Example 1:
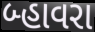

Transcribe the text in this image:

બ્હાવરા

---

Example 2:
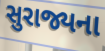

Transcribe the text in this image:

સુરાજ્યના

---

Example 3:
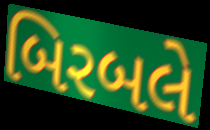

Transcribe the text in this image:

બિરબલે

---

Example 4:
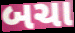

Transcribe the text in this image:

બચા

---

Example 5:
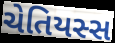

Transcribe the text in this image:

ચેતિયસ્સ